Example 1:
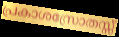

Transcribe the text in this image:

പ്രകാശസ്രോതസ്സ്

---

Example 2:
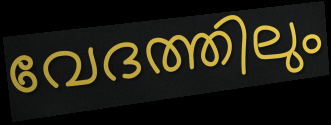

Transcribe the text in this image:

വേദത്തിലും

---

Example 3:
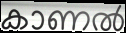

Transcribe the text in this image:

കാണൽ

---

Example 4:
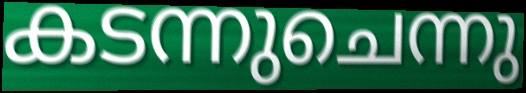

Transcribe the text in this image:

കടന്നുചെന്നു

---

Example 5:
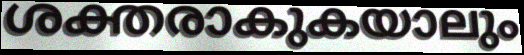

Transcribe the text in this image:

ശക്തരാകുകയാലും